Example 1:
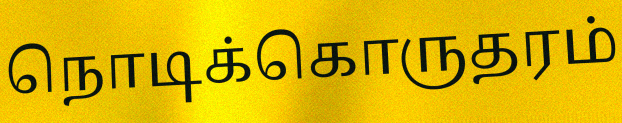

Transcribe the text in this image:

நொடிக்கொருதரம்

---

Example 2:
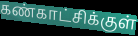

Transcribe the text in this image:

கண்காட்சிக்குள்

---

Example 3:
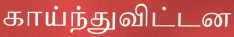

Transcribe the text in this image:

காய்ந்துவிட்டன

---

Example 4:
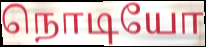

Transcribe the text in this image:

நொடியோ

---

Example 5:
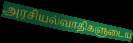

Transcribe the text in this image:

அரசியல்வாதிகளுடைய